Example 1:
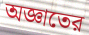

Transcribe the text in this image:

অজ্ঞাতের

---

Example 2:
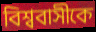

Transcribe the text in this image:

বিশ্ববাসীকে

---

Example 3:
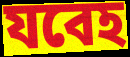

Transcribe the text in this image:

যবেহ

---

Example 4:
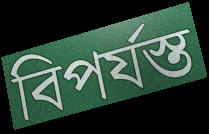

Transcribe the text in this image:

বিপর্যস্ত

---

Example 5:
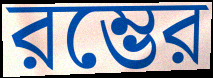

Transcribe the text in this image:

রম্ভের